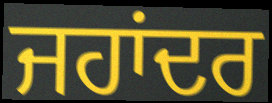
ਜਹਾਂਦਰ